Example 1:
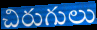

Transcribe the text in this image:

చిరుగులు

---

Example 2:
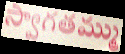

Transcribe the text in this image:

స్వాగతమ్ము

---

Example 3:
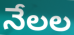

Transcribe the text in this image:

నేలల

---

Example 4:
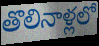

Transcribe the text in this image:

తొలినాళ్లలో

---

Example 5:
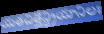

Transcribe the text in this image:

యతచిత్తేన్ద్రియానిలః